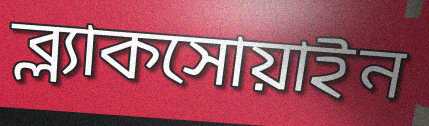
ব্ল্যাকসোয়াইন